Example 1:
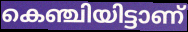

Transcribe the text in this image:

കെഞ്ചിയിട്ടാണ്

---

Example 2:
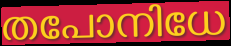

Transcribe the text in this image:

തപോനിധേ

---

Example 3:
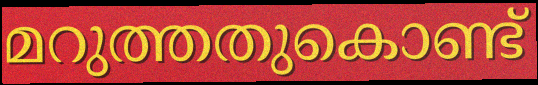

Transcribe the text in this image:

മറുത്തതുകൊണ്ട്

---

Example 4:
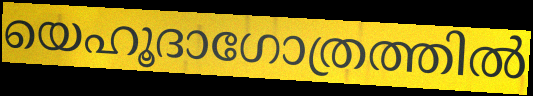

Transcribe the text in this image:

യെഹൂദാഗോത്രത്തിൽ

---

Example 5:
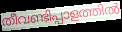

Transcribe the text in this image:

തീവണ്ടിപ്പാളത്തിൽ